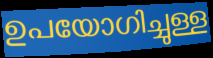
ഉപയോഗിച്ചുള്ള